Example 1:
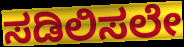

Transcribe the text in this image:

ಸಡಿಲಿಸಲೇ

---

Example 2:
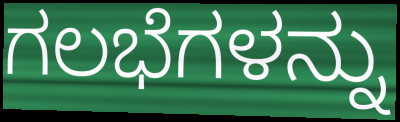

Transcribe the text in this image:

ಗಲಭೆಗಳನ್ನು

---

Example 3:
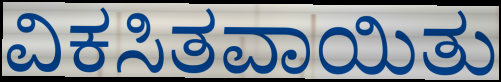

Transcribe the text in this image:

ವಿಕಸಿತವಾಯಿತು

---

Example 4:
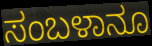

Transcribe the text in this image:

ಸಂಬಳಾನೂ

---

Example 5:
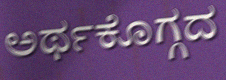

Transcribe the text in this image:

ಅರ್ಥಕೊಗ್ಗದ